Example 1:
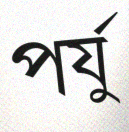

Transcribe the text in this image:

পর্যু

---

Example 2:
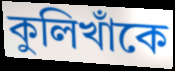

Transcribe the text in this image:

কুলিখাঁকে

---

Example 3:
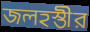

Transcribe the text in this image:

জলহস্তীর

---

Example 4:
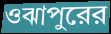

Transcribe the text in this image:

ওঝাপুরের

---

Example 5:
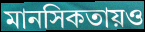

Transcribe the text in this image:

মানসিকতায়ও